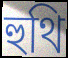
হুথি